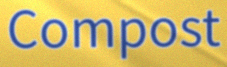
Compost